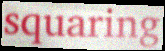
squaring